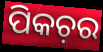
ପିକଚ଼ର